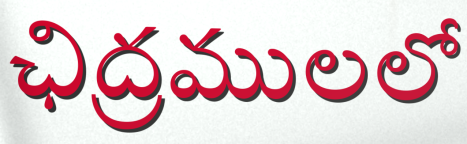
ఛిద్రములలో